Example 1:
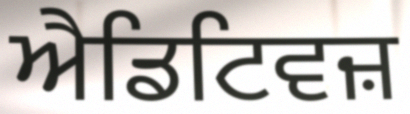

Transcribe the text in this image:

ਐਡਿਟਿਵਜ਼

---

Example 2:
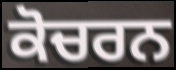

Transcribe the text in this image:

ਕੋਚਰਨ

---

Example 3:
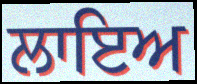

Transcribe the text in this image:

ਲਾਇਅ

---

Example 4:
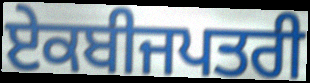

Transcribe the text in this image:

ਏਕਬੀਜਪਤਰੀ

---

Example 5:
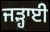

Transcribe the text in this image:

ਜੜ੍ਹਾਈ